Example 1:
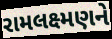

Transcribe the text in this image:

રામલક્ષ્મણને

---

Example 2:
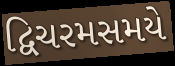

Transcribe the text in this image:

દ્વિચરમસમયે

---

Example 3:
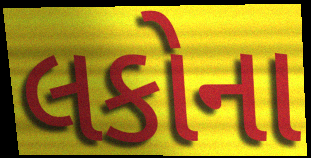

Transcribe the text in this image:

લકોના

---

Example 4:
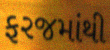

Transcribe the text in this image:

ફરજમાંથી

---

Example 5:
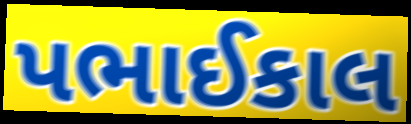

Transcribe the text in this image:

પભાઈકાલ